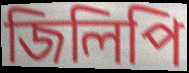
জিলিপি